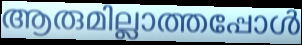
ആരുമില്ലാത്തപ്പോൾ